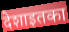
देशाइतका